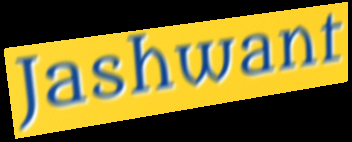
Jashwant